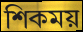
শিকময়